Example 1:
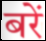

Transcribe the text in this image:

बरें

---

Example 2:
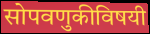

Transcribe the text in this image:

सोपवणुकीविषयी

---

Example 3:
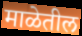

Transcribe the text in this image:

माळेतील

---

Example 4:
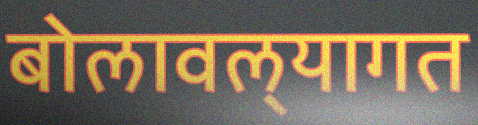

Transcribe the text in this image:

बोलावल्यागत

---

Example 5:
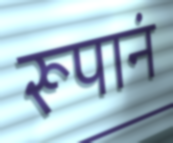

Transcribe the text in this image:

रूपानं